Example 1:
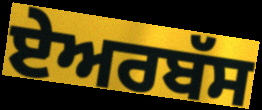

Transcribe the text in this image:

ਏਅਰਬੱਸ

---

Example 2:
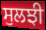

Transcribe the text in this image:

ਸੁਲਝੀ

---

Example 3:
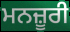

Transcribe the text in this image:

ਮਨਜ਼ੂਰੀ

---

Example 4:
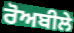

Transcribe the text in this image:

ਰੋਅਬੀਲੇ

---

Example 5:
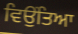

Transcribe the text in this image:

ਵਿਉਂਤਿਆ